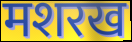
मशरख